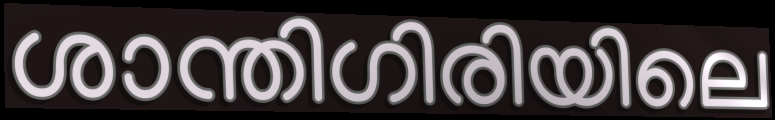
ശാന്തിഗിരിയിലെ